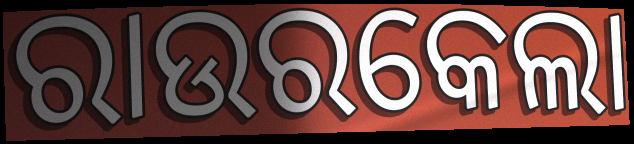
ରାଉରକେଲା